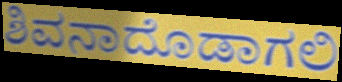
ಶಿವನಾದೊಡಾಗಲಿ